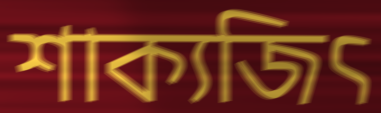
শাক্যজিৎ